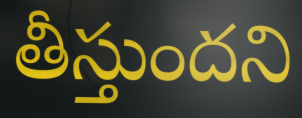
తీస్తుందని